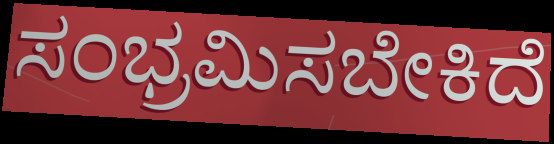
ಸಂಭ್ರಮಿಸಬೇಕಿದೆ